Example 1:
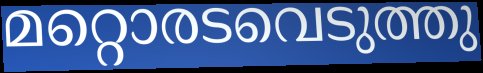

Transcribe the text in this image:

മറ്റൊരടവെടുത്തു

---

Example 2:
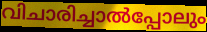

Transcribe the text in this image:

വിചാരിച്ചാൽപ്പോലും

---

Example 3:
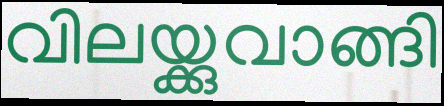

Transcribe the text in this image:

വിലയ്ക്കുവാങ്ങി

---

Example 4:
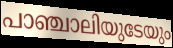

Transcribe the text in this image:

പാഞ്ചാലിയുടേയും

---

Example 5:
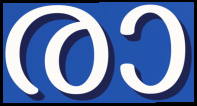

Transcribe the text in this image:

രാ